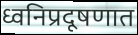
ध्वनिप्रदूषणात